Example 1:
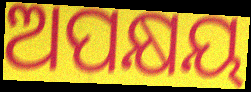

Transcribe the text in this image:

ଅପକ୍ଷୟ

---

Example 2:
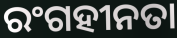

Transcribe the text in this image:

ରଂଗହୀନତା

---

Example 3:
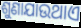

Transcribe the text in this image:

ଶୁଣାଯାଉଥାଏ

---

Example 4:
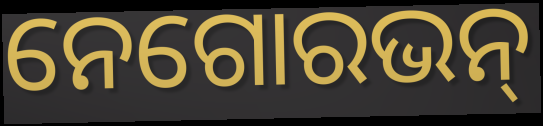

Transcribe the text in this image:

ନେଗୋରଭନ୍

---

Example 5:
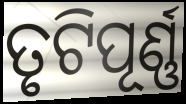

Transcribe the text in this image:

ତୃଟିପୂର୍ଣ୍ଣ